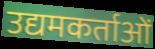
उद्यमकर्ताओं